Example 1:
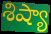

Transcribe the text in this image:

శిష్యా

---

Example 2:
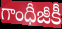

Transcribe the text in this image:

గాంధీజీకీ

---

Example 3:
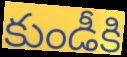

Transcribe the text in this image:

కుండీకి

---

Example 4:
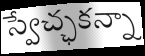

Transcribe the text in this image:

స్వేచ్ఛకన్నా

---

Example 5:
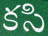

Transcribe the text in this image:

కసి